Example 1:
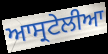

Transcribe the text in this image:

ਆਸ੍ਰਟੇਲੀਆ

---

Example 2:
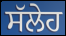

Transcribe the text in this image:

ਸੱਲੇਹ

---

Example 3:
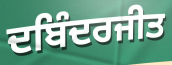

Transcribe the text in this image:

ਦਬਿੰਦਰਜੀਤ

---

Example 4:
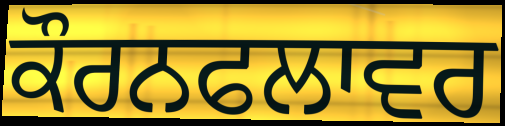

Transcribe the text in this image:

ਕੌਰਨਫਲਾਵਰ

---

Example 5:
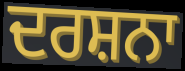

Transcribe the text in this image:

ਦਰਸ਼ਨਾ